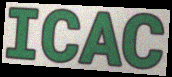
ICAC